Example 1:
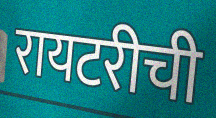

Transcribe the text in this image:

रायटरीची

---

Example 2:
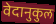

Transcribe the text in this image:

वेदानुकुल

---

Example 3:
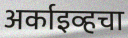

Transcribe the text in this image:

अर्काइव्हचा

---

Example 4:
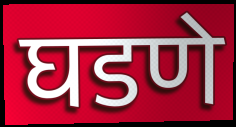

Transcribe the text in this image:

घडणे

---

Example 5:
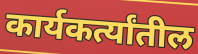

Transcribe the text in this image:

कार्यकर्त्यांतील